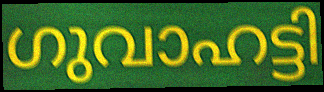
ഗുവാഹട്ടി